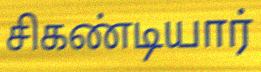
சிகண்டியார்